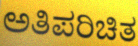
ಅತಿಪರಿಚಿತ